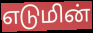
எடுமின்